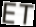
ET